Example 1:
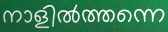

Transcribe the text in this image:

നാളിൽത്തന്നെ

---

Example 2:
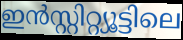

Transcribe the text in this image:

ഇൻസ്റ്റിറ്റ്യൂട്ടിലെ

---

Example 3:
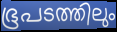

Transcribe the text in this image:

ഭൂപടത്തിലും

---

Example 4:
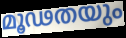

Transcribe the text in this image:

മൂഢതയും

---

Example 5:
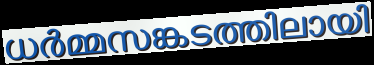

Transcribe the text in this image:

ധർമ്മസങ്കടത്തിലായി